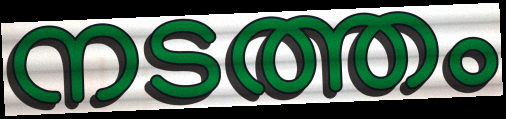
നടത്തം